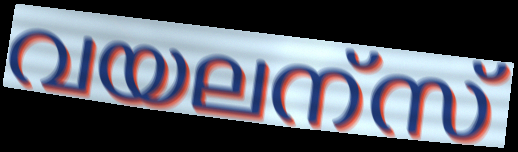
വയലന്സ്